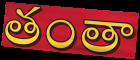
తంతా